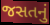
જસતનું